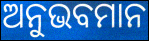
ଅନୁଭବମାନ